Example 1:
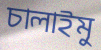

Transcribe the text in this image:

চালাইমু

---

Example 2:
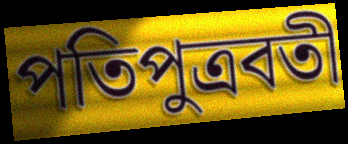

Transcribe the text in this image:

পতিপুত্রবতী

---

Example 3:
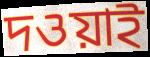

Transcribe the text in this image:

দওয়াই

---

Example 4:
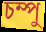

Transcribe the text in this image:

চম্পু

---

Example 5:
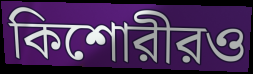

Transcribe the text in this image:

কিশোরীরও